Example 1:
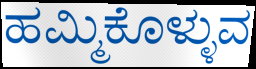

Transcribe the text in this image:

ಹಮ್ಮಿಕೊಳ್ಳುವ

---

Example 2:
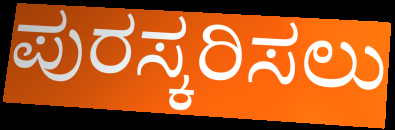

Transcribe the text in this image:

ಪುರಸ್ಕರಿಸಲು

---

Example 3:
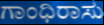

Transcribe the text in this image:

ಗಾಂಧಿರಾಸು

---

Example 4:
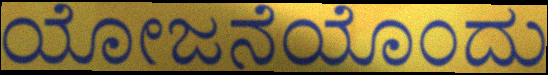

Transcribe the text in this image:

ಯೋಜನೆಯೊಂದು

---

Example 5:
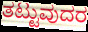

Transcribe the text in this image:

ತಟ್ಟುವುದರ